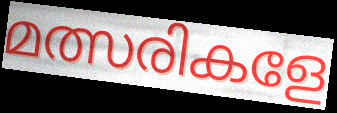
മത്സരികളേ